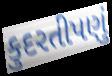
કુદરતીપણું